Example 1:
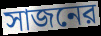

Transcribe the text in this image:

সাজনের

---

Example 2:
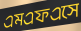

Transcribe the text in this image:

এমএফএসে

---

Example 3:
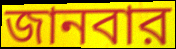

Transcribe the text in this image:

জানবার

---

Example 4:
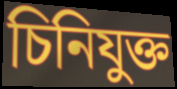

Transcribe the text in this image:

চিনিযুক্ত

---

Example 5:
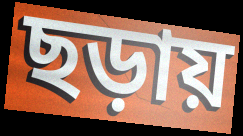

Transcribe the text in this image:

ছড়ায়